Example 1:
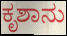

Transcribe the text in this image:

ಕೃಶಾನು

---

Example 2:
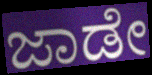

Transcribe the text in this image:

ಜಾಡೇ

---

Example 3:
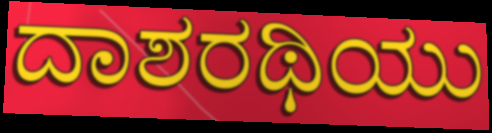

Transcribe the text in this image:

ದಾಶರಥಿಯು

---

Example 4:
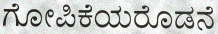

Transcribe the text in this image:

ಗೋಪಿಕೆಯರೊಡನೆ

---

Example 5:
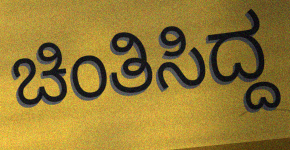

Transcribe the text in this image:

ಚಿಂತಿಸಿದ್ದ